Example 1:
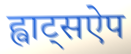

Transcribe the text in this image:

ह्वाट्सऐप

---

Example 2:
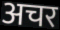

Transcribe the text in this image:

अचर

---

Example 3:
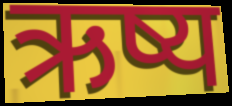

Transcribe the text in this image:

ऋष्य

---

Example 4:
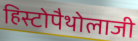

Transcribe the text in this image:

हिस्टोपैथोलाजी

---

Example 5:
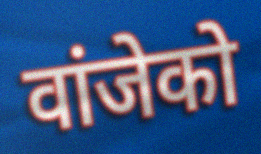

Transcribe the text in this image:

वांजेको